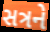
સત્રને